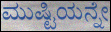
ಮುಷ್ಟಿಯನ್ನೇ